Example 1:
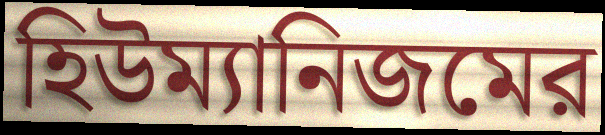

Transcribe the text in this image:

হিউম্যানিজমের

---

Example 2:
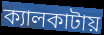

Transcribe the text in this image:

ক্যালকাটায়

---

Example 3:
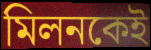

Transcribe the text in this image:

মিলনকেই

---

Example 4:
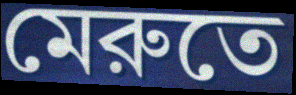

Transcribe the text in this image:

মেরুতে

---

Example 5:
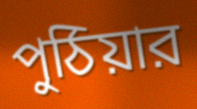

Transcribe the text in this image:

পুঠিয়ার